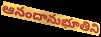
ఆనందానుభూతిని